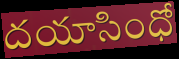
దయాసింధో